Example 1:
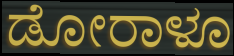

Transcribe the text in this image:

ಡೋರಾಳೂ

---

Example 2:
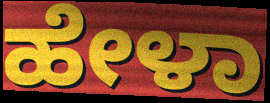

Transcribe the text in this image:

ಹೇಳಾ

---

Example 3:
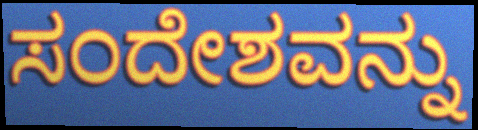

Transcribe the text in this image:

ಸಂದೇಶವನ್ನು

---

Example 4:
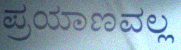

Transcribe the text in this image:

ಪ್ರಯಾಣವಲ್ಲ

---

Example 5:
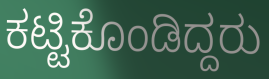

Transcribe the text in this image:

ಕಟ್ಟಿಕೊಂಡಿದ್ದರು